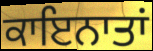
ਕਾਇਨਾਤਾਂ